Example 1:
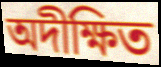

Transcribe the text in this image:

অদীক্ষিত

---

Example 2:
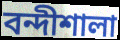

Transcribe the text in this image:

বন্দীশালা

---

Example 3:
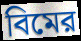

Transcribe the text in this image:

বিমের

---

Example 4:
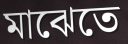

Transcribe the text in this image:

মাঝেতে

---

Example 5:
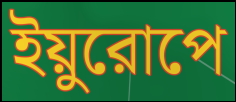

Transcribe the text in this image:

ইয়ুরোপে